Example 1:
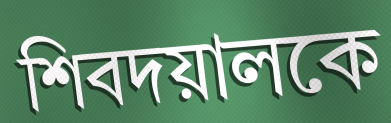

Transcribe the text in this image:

শিবদয়ালকে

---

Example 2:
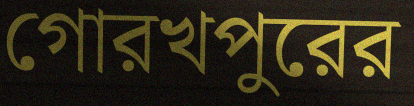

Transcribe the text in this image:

গোরখপুরের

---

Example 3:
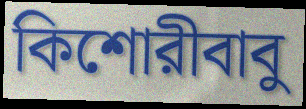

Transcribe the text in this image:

কিশোরীবাবু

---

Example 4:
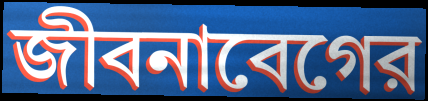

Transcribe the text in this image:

জীবনাবেগের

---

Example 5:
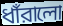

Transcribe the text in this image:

ধাঁরালো